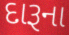
દારૂના